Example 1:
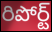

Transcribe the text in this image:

రిపోర్ట్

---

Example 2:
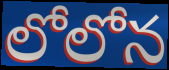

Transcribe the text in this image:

లోలోన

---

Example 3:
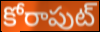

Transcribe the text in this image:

కోరాపుట్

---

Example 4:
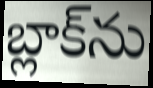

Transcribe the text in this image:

బ్లాక్‌ను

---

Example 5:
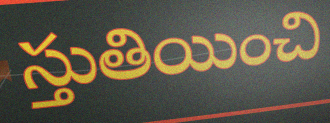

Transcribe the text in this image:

స్తుతియించి